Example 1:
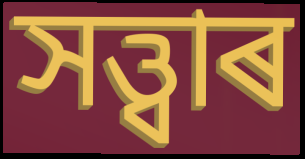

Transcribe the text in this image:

সত্ত্বাৰ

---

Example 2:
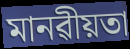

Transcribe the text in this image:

মানৱীয়তা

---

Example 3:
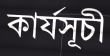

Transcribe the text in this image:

কাৰ্যসূচী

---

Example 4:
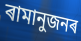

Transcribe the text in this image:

ৰামানুজনৰ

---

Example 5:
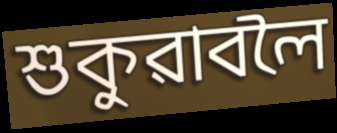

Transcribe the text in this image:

শুকুৱাবলৈ